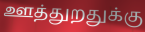
ஊத்துறதுக்கு